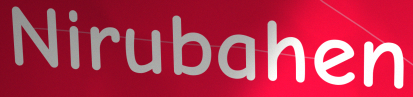
Nirubahen